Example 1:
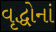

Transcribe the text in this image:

વૃદ્ધોનાં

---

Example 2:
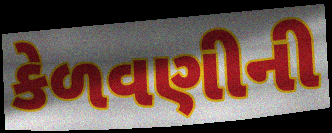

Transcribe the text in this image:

કેળવણીની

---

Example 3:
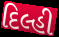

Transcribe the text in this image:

દિલ્હી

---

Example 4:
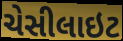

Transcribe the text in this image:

ચેસીલાઇટ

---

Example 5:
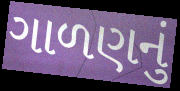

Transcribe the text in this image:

ગાળણનું